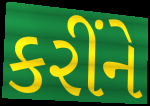
કરીંને